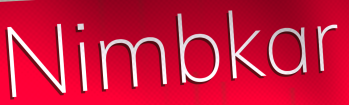
Nimbkar